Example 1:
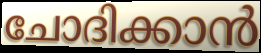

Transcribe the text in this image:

ചോദിക്കാൻ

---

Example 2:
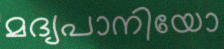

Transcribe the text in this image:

മദ്യപാനിയോ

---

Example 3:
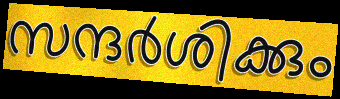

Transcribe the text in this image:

സന്ദർശിക്കും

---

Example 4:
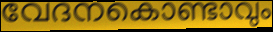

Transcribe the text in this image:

വേദനകൊണ്ടാവും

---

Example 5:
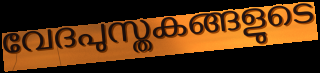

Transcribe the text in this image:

വേദപുസ്തകങ്ങളുടെ